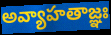
అవ్యాహతాజ్ఞః